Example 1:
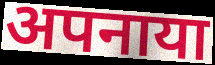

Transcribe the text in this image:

अपनाया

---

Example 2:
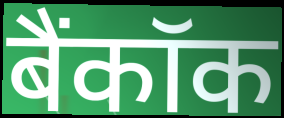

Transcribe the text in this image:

बैंकॉक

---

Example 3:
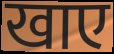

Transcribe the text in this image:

खाए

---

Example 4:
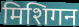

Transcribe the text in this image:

मिशिगन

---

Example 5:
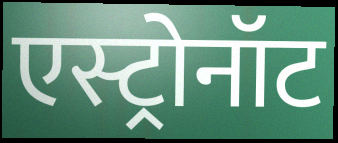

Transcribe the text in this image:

एस्‍ट्रोनॉट